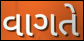
વાગતે